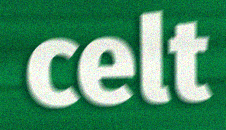
celt